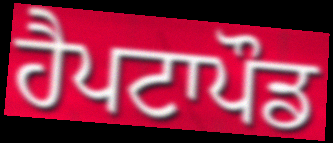
ਹੈਪਟਾਪੌਡ